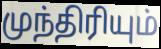
முந்திரியும்